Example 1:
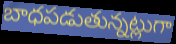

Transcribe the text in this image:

బాధపడుతున్నట్లుగా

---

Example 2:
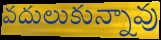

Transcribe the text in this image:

వదులుకున్నావు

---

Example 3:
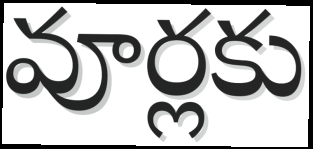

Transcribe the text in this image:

వూర్లకు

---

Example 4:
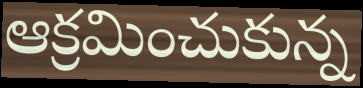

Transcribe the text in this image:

ఆక్రమించుకున్న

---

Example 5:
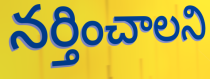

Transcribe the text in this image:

నర్తించాలని